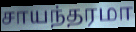
சாயந்தரமா